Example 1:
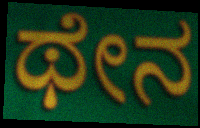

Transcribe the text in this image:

ಥೇನ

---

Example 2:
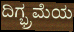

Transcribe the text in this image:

ದಿಗ್ಭ್ರಮೆಯ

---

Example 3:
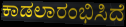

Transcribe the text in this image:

ಕಾಡಲಾರಂಭಿಸಿದೆ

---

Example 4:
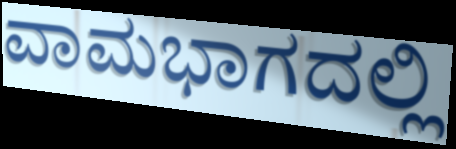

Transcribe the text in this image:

ವಾಮಭಾಗದಲ್ಲಿ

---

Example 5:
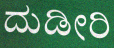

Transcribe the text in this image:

ದುಡೀರಿ